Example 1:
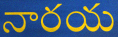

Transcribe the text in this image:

నారయ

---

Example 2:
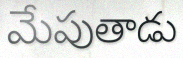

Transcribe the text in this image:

మేపుతాడు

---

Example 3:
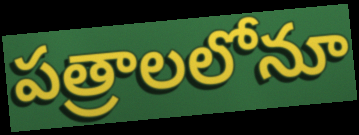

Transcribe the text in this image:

పత్రాలలోనూ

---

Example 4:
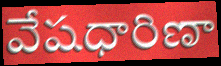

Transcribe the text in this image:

వేషధారిణా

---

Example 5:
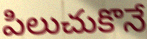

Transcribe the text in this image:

పిలుచుకొనే